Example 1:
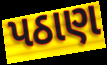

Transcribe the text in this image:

પઠાણ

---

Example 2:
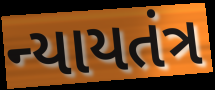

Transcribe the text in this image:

ન્યાયતંત્ર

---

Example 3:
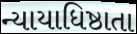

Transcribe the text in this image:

ન્યાયાધિષ્ઠાતા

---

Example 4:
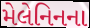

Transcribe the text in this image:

મેલેનિનના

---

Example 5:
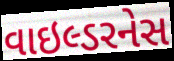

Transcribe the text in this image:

વાઇલ્ડરનેસ